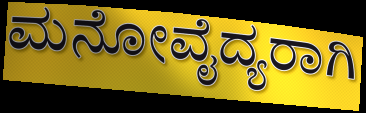
ಮನೋವೈದ್ಯರಾಗಿ